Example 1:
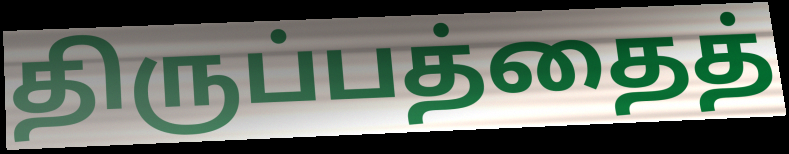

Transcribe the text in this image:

திருப்பத்தைத்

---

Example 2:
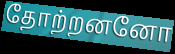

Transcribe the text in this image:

தோற்றனனோ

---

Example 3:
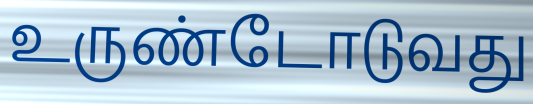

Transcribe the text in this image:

உருண்டோடுவது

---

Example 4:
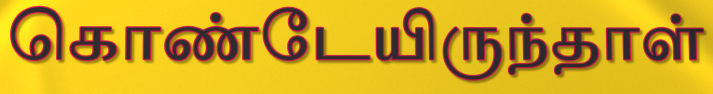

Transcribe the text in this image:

கொண்டேயிருந்தாள்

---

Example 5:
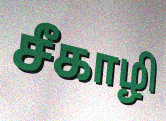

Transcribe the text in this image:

சீகாழி